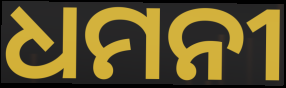
ଧମନୀ